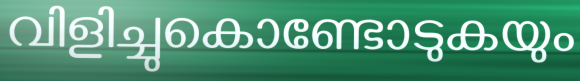
വിളിച്ചുകൊണ്ടോടുകയും